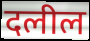
दलील